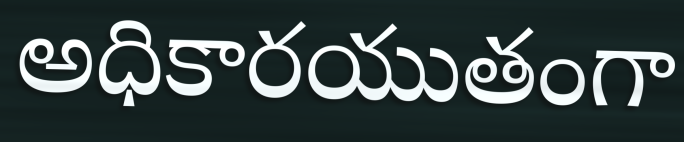
అధికారయుతంగా